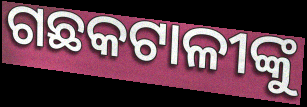
ଗଛକଟାଳୀଙ୍କୁ